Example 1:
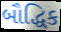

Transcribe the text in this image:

બૌદ્ધિક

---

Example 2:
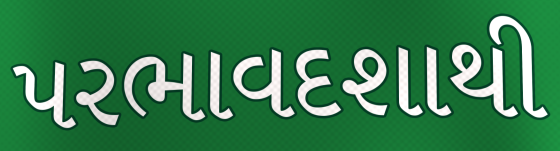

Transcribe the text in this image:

પરભાવદશાથી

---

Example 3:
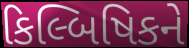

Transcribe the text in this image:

કિલ્બિષિકને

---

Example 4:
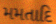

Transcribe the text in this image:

મમતાદિ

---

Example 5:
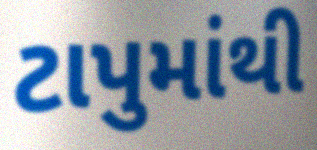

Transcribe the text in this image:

ટાપુમાંથી